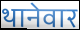
थानेवार